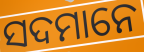
ସଦମାନେ